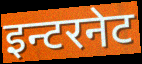
इन्टरनेट